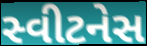
સ્વીટનેસ